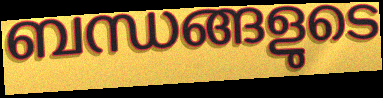
ബന്ധങ്ങളുടെ